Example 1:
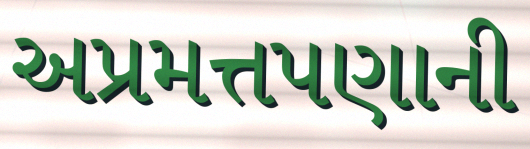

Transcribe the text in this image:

અપ્રમત્તપણાની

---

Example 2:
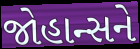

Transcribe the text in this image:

જોહાન્સને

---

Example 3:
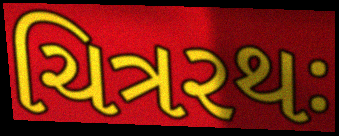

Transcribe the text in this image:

ચિત્રરથઃ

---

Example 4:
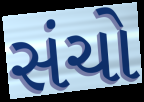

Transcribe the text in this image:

સંચો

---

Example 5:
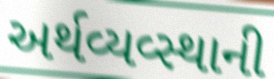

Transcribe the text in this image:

અર્થવ્યવ્સ્થાની